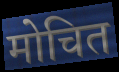
मोचित